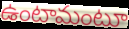
ఉంటామంటూ